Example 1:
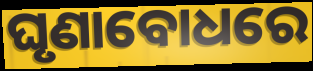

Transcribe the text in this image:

ଘୃଣାବୋଧରେ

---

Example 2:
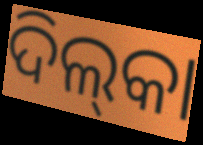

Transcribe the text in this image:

ଦିଲ୍‌କା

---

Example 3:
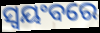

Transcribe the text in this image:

ସ୍ଵୟଂବରେ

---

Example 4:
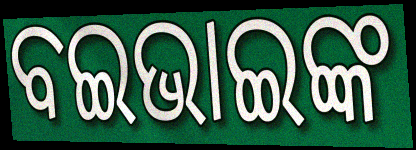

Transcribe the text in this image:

ବଇଭାଇଙ୍କ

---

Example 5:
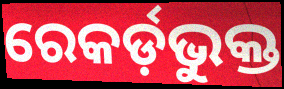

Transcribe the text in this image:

ରେକର୍ଡ଼ଭୁକ୍ତ